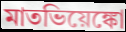
মাতভিয়েঙ্কো